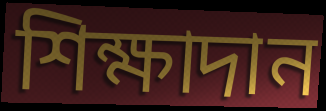
শিক্ষাদান